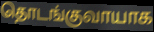
தொடங்குவாயாக